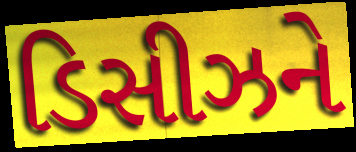
ડિસીઝને